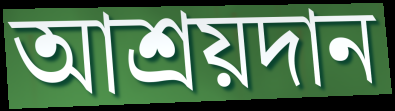
আশ্রয়দান